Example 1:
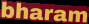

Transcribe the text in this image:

bharam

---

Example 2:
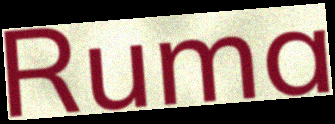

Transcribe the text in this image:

Ruma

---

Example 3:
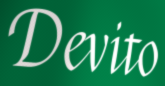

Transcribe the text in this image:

Devito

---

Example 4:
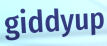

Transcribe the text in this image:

giddyup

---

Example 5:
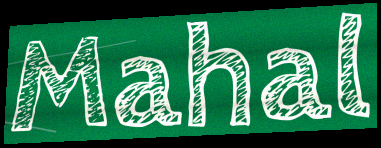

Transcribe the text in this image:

Mahal